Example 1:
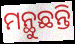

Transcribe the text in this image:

ମନ୍ଥୁଛନ୍ତି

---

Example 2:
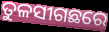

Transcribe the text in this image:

ତୁଳସୀଗଛରେ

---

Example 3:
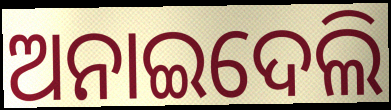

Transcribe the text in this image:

ଅନାଇଦେଲି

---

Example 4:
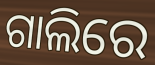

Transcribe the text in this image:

ଗାଲିରେ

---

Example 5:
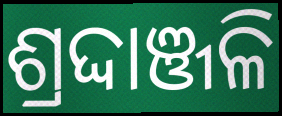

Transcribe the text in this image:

ଶ୍ରଦ୍ଦାଞ୍ଜଳି